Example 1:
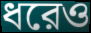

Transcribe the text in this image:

ধরেও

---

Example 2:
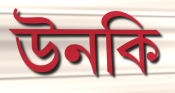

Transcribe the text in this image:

উনকি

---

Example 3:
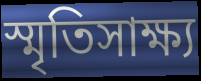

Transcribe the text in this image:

স্মৃতিসাক্ষ্য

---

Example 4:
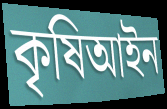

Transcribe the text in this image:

কৃষিআইন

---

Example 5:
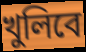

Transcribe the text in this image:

খুলিবে